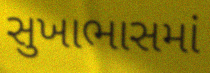
સુખાભાસમાં